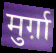
मुर्ग़ा